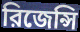
রিজেন্সি